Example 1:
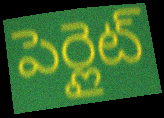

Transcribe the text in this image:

పెర్లైట్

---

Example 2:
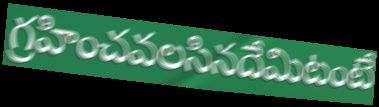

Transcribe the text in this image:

గ్రహించవలసినదేమిటంటే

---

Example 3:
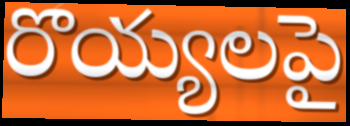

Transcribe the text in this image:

రొయ్యలపై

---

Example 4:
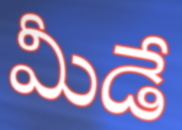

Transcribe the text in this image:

మీడే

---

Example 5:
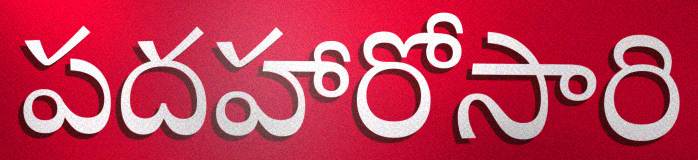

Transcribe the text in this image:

పదహారోసారి